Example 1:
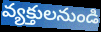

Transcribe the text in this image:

వ్యక్తులనుండి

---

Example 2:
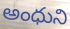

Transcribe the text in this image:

అంధుని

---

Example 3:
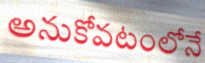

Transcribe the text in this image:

అనుకోవటంలోనే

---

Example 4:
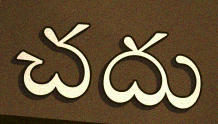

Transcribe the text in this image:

చదు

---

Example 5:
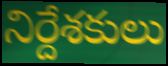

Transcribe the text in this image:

నిర్దేశకులు